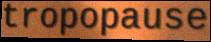
tropopause